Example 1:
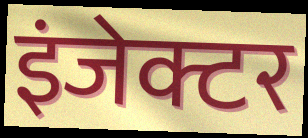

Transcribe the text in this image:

इंजेक्टर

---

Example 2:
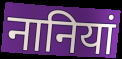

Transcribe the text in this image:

नानियां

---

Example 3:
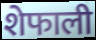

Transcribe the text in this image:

शेफाली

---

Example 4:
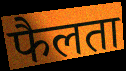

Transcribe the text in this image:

फैलता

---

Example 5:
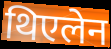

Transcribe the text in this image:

थिएलेन